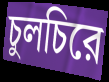
চুলচিরে